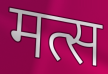
मत्स